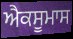
ਐਕਸੂਮਾਸ